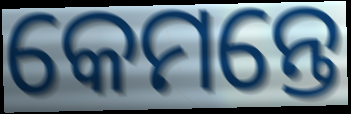
କେମନ୍ତେ